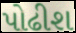
પોઢીશ